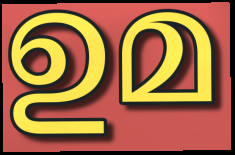
ഉമ